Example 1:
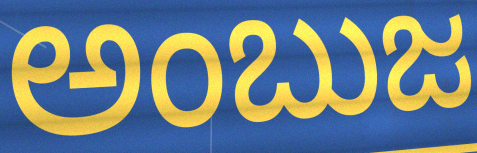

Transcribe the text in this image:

ಅಂಬುಜ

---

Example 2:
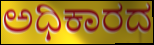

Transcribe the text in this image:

ಅಧಿಕಾರದ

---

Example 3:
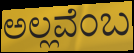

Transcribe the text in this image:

ಅಲ್ಲವೆಂಬ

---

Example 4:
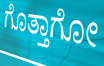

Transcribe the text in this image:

ಗೊತ್ತಾಗೋ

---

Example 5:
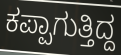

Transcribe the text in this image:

ಕಪ್ಪಾಗುತ್ತಿದ್ದ